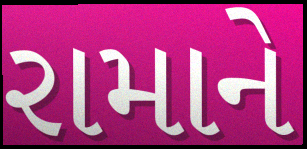
રામાને